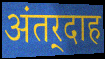
अंतर्दाह